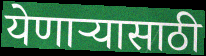
येणाऱ्यासाठी